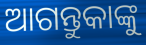
ଆଗନ୍ତୁକାଙ୍କୁ